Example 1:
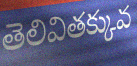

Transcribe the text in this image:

తెలివితక్కువ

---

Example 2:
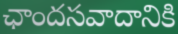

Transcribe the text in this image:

ఛాందసవాదానికి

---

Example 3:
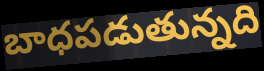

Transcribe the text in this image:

బాధపడుతున్నది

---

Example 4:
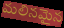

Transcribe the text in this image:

మలినమైన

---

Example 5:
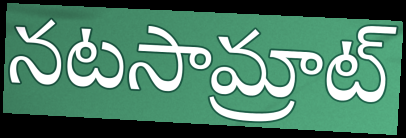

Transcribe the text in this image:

నటసామ్రాట్